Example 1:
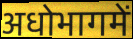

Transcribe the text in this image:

अधोभागमें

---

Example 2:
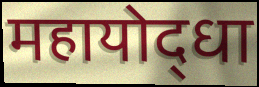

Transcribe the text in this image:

महायोद्धा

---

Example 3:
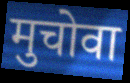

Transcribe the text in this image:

मुचोवा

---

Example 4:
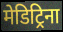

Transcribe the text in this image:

मेडिट्रिना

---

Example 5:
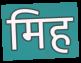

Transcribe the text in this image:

मिह